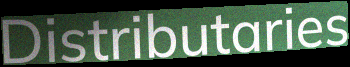
Distributaries